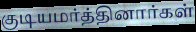
குடியமர்த்தினார்கள்